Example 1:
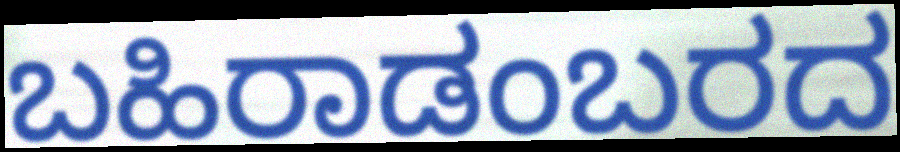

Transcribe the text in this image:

ಬಹಿರಾಡಂಬರದ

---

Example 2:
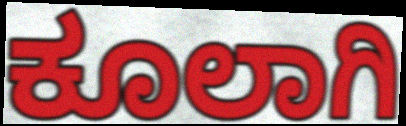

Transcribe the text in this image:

ಕೂಲಾಗಿ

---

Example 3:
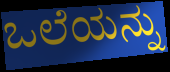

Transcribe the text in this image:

ಒಲೆಯನ್ನು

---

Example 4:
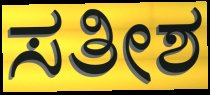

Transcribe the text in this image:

ಸತೀಶ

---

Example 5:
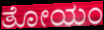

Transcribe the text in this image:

ತೋಯಂ